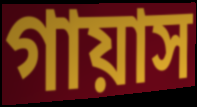
গায়াস